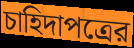
চাহিদাপত্রের